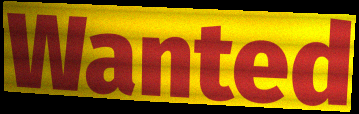
Wanted